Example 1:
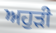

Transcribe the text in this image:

ਅਹੁੜੀ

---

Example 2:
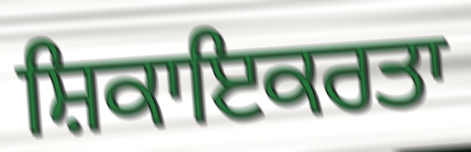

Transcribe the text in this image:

ਸ਼ਿਕਾਇਕਰਤਾ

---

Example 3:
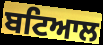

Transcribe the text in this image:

ਬਟਿਆਲ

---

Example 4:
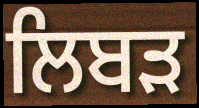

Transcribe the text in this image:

ਲਿਬੜ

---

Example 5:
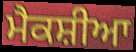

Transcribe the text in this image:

ਮੈਕਸ਼ੀਆ